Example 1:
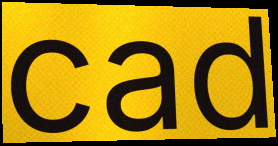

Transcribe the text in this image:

cad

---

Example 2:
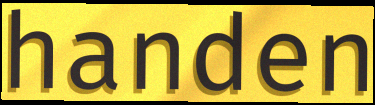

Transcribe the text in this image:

handen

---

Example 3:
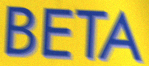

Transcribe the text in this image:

BETA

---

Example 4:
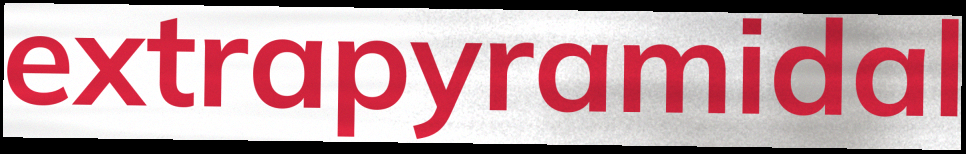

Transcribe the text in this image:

extrapyramidal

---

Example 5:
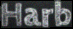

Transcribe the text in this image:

Harb